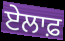
ਏਲਾਫ਼